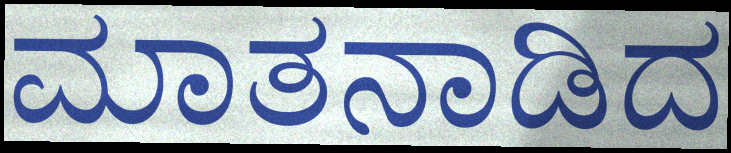
ಮಾತನಾಡಿದ